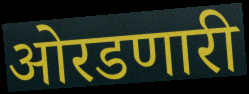
ओरडणारी